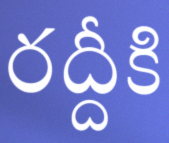
రద్దీకి